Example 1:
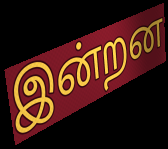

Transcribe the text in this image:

இன்றன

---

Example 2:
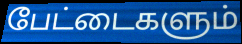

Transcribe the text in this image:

பேட்டைகளும்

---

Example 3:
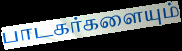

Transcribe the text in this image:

பாடகர்களையும்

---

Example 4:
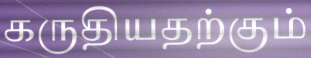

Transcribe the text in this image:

கருதியதற்கும்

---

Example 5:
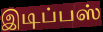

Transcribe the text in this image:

இடிப்பஸ்